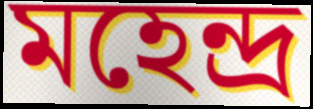
মহেন্দ্ৰ